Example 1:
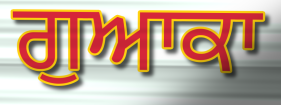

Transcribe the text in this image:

ਗੁਆਕਾ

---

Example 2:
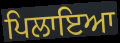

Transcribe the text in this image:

ਪਿਲਾਇਆ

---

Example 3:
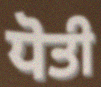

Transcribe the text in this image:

ਧੋਤੀ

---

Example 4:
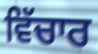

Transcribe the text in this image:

ਵਿੱਚਾਰ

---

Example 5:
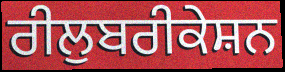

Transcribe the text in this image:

ਰੀਲੁਬਰੀਕੇਸ਼ਨ